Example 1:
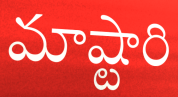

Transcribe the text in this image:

మాష్టారి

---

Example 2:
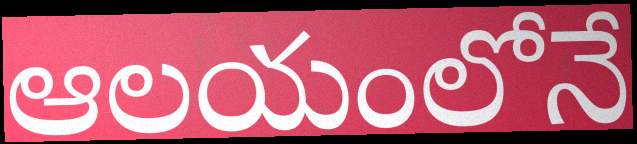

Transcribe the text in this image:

ఆలయంలోనే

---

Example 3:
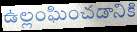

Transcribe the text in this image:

ఉల్లంఘించడానికి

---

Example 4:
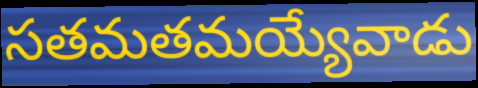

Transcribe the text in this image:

సతమతమయ్యేవాడు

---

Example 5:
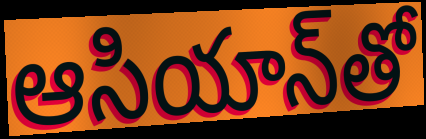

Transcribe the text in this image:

ఆసియాన్‌తో